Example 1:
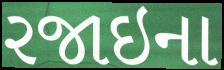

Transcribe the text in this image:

રજાઇના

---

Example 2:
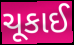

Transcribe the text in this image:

ચૂકાઈ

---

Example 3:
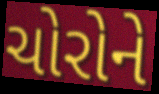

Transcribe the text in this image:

ચોરોને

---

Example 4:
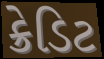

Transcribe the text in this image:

ક્રેડિટ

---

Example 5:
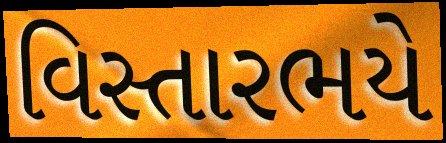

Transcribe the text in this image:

વિસ્તારભયે